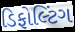
ડિફોલ્ટિંગ